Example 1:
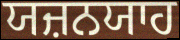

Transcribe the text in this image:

ਯਜ਼ਨਯਾਹ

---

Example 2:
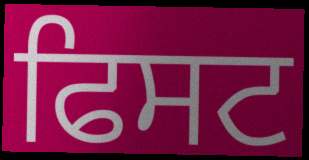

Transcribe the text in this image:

ਫਿਸਟ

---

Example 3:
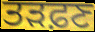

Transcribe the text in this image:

ਤੜਫ਼ਣ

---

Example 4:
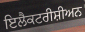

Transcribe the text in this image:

ਇਲੈਕਟਰੀਸ਼ੀਅਨ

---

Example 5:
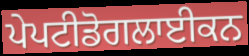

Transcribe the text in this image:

ਪੇਪਟੀਡੋਗਲਾਈਕਨ